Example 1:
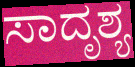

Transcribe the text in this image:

ಸಾದೃಶ್ಯ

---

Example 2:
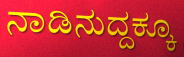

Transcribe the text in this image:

ನಾಡಿನುದ್ದಕ್ಕೂ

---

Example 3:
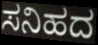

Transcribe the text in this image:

ಸನಿಹದ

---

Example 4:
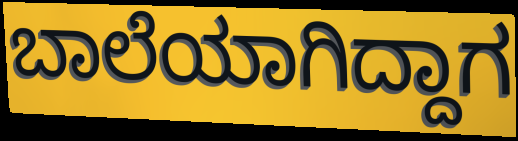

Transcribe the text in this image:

ಬಾಲೆಯಾಗಿದ್ದಾಗ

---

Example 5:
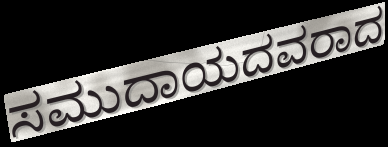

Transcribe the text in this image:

ಸಮುದಾಯದವರಾದ